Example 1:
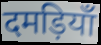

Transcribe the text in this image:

दमड़ियाँ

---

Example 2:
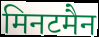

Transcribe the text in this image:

मिनटमैन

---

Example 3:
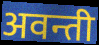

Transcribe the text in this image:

अवन्ती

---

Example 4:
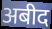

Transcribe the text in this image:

अबीद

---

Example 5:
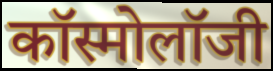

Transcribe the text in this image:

कॉस्मोलॉजी